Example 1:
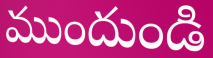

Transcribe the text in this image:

ముందుండి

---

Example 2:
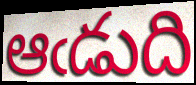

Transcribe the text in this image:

ఆఁడుది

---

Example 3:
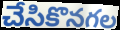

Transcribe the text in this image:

చేసికొనగల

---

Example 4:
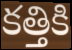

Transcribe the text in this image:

కత్తికి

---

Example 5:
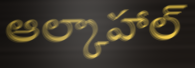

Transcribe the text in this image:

ఆల్కాహాల్